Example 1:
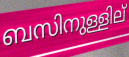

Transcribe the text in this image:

ബസിനുള്ളില്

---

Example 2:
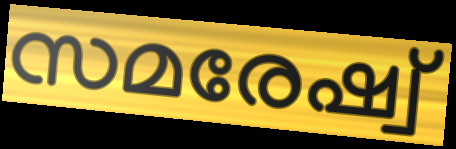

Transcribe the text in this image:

സമരേഷ്വ്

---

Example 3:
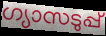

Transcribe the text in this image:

ഗ്യാസടുപ്പ്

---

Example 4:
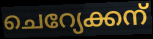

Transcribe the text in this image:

ചെറ്യേക്കന്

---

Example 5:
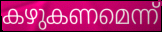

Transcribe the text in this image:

കഴുകണമെന്ന്